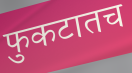
फुकटातच